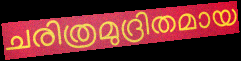
ചരിത്രമുദ്രിതമായ